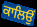
ਕਾਲਿਉਂ